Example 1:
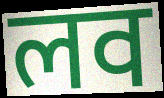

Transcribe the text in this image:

लव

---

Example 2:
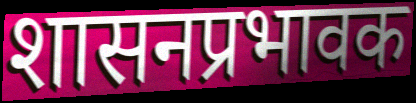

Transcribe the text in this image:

शासनप्रभावक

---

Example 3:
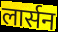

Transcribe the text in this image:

लार्सन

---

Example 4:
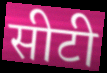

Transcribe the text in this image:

सीटी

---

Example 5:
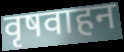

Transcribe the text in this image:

वृषवाहन